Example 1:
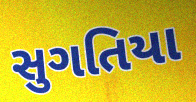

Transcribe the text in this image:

સુગતિયા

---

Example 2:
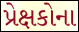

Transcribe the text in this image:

પ્રેક્ષકોના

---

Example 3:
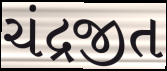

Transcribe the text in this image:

ચંદ્રજીત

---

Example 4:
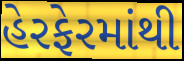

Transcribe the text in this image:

હેરફેરમાંથી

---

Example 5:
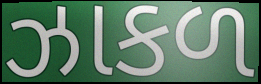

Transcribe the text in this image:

ઝાકળ